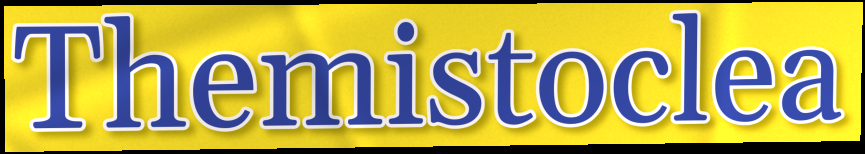
Themistoclea